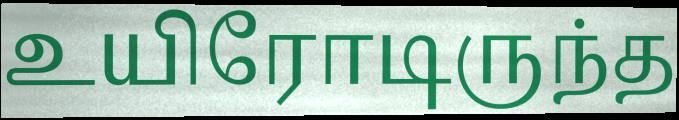
உயிரோடிருந்த